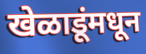
खेळाडूंमधून